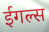
ईगल्स